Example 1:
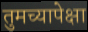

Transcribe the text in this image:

तुमच्यापेक्षा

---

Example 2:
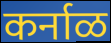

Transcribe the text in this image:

कर्नाळ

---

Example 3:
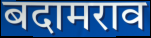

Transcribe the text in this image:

बदामराव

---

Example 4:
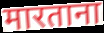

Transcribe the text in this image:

मारताना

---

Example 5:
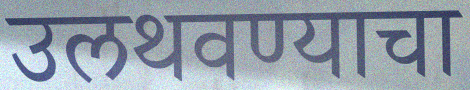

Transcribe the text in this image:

उलथवण्याचा